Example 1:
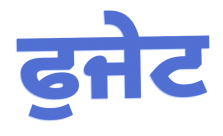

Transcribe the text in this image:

ਫੁਜੇਟ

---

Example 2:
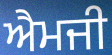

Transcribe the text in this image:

ਐਮਜੀ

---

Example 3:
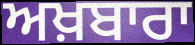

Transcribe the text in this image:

ਅਖ਼ਬਾਰਾ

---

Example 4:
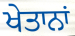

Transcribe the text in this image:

ਖੇਤਾਨਾਂ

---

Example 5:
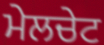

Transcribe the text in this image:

ਮੇਲਚੇਟ